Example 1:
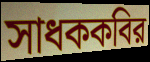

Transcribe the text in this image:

সাধককবির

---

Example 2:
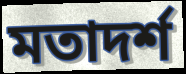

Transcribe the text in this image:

মতাদর্শ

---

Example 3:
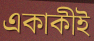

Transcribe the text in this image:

একাকীই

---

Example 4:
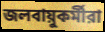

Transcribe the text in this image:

জলবায়ুকর্মীরা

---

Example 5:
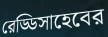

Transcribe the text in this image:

রেড্ডিসাহেবের